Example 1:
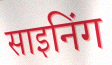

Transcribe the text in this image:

साइनिंग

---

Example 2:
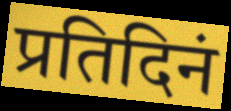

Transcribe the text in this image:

प्रतिदिनं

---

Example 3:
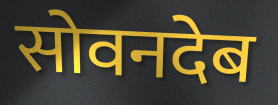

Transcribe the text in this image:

सोवनदेब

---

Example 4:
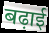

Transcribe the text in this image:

बढ़ाई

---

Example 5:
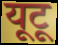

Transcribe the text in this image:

यूटू